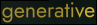
generative